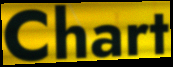
Chart